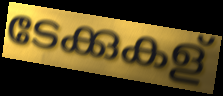
ടേക്കുകള്